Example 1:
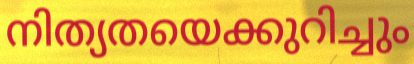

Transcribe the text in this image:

നിത്യതയെക്കുറിച്ചും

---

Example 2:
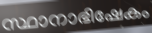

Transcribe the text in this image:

സ്ഥാനാഭിഷേകം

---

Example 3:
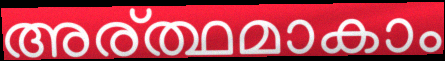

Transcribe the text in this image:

അര്ത്ഥമാകാം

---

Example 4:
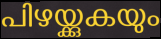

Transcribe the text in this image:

പിഴയ്ക്കുകയും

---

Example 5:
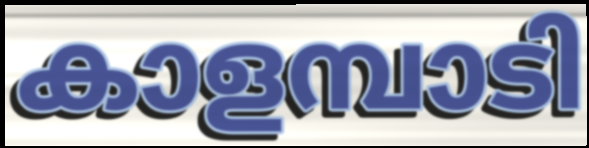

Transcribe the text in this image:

കാളമ്പാടി